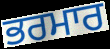
ਭਰਮਾਰ